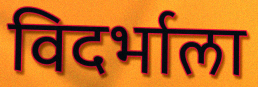
विदर्भाला